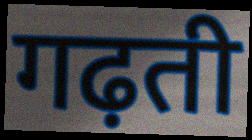
गढ़ती